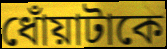
ধোঁয়াটাকে